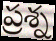
ప్రశ్న